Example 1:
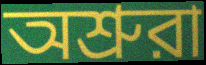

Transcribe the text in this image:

অশ্রুরা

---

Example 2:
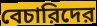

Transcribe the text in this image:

বেচারিদের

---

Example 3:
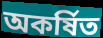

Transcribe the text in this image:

অকর্ষিত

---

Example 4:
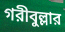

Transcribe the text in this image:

গরীবুল্লার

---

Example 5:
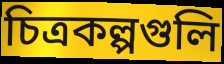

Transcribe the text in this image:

চিত্রকল্পগুলি